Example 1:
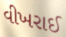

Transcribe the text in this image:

વીખરાઈ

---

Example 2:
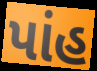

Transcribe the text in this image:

પાંહ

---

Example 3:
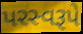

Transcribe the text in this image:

પરસ્વરૂપે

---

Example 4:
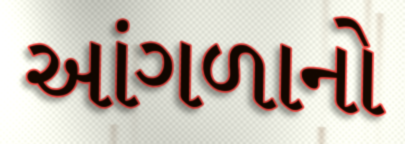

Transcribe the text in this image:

આંગળાનો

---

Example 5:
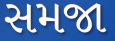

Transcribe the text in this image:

સમજા